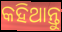
କହିଥାନ୍ତୁ